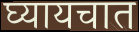
घ्यायचात